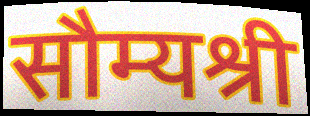
सौम्यश्री